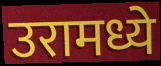
उरामध्ये